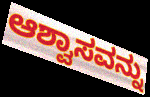
ಆಶ್ವಾಸವನ್ನು